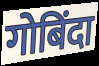
गोबिंदा